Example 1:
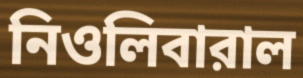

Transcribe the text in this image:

নিওলিবারাল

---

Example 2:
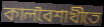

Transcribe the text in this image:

কালবৈশাখীতে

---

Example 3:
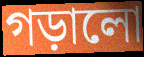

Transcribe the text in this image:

গড়ালো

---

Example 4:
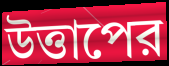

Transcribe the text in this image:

উত্তাপের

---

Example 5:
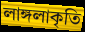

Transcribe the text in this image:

লাঙ্গলাকৃতি